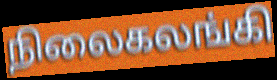
நிலைகலங்கி